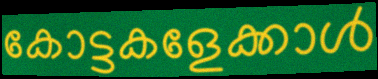
കോട്ടകളേക്കാൾ